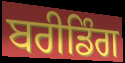
ਬਰੀਡਿੰਗ